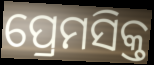
ପ୍ରେମସିକ୍ତ